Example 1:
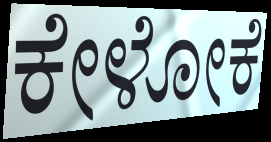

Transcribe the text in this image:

ಕೇಳೋಕೆ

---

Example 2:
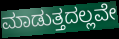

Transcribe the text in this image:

ಮಾಡುತ್ತದಲ್ಲವೇ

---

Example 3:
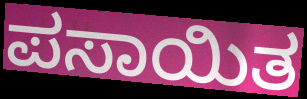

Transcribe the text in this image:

ಪಸಾಯಿತ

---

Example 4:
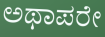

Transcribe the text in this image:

ಅಥಾಪರೇ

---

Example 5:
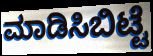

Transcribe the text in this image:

ಮಾಡಿಸಿಬಿಟ್ಟೆ